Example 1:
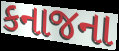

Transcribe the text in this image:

કનાજના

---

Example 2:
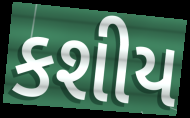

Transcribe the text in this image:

કશીય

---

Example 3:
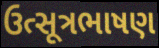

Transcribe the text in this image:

ઉત્સૂત્રભાષણ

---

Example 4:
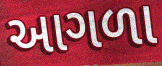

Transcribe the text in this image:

આગળા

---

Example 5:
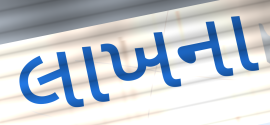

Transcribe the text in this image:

લાખના